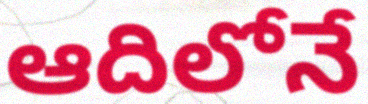
ఆదిలోనే